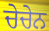
ਚੇਚੇਨ